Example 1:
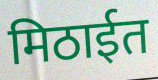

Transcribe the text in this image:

मिठाईत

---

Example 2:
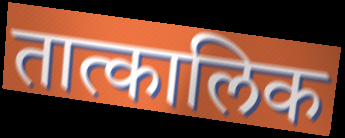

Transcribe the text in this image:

तात्कालिक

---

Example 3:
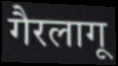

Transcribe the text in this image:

गैरलागू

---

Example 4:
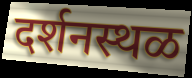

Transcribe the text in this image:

दर्शनस्थळ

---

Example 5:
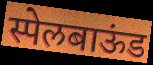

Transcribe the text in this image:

स्पेलबाऊंड